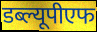
डब्ल्यूपीएफ